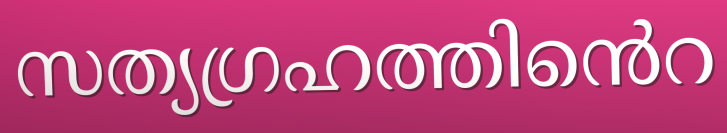
സത്യഗ്രഹത്തിൻെറ